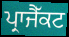
ਪ੍ਰਾਜੈੱਕਟ